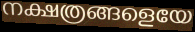
നക്ഷത്രങ്ങളെയേ